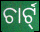
ଚାର୍ଟ୍